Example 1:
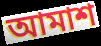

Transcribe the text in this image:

আমাশ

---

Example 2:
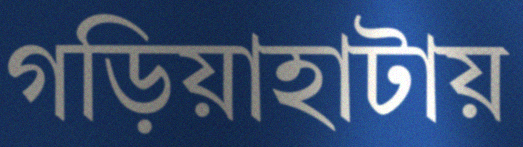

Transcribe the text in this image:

গড়িয়াহাটায়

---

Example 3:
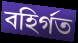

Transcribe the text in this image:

বহির্গত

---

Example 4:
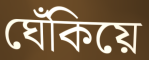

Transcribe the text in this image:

ঘেঁকিয়ে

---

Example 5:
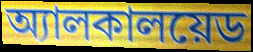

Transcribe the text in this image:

অ্যালকালয়েড